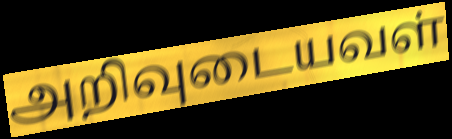
அறிவுடையவள்